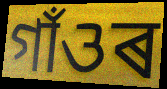
গাঁওৰ